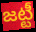
జట్టీ